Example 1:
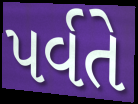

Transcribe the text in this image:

પર્વતે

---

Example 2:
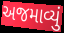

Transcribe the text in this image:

અજમાવ્યું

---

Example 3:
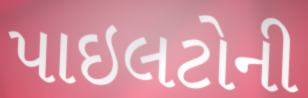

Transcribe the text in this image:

પાઇલટોની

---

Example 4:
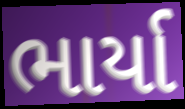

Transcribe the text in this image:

ભાર્યા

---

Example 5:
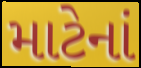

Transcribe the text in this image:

માટેનાં